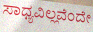
ಸಾಧ್ಯವಿಲ್ಲವೆಂದೇ